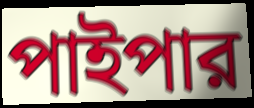
পাইপার